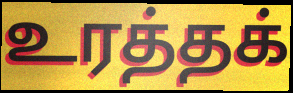
உரத்தக்